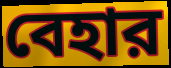
বেহার